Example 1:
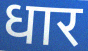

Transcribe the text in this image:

धार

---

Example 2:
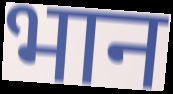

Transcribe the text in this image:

भान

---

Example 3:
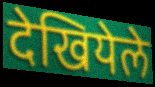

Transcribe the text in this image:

देखियेले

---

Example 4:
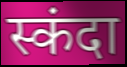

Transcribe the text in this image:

स्कंदा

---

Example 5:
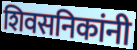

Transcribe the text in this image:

शिवसनिकांनी